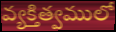
వ్యక్తిత్వములో